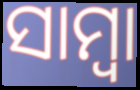
ସାମ୍ବା